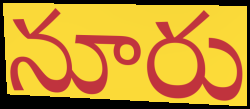
నూరు